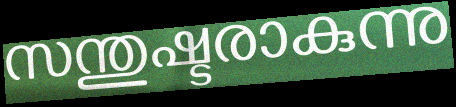
സന്തുഷ്ടരാകുന്നു